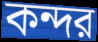
কন্দর